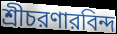
শ্রীচরণারবিন্দ